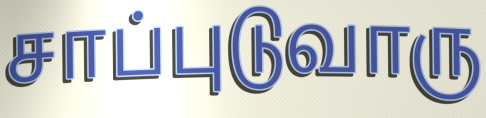
சாப்புடுவாரு